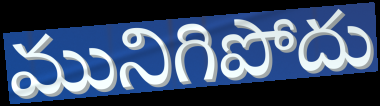
మునిగిపోదు